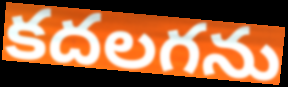
కదలగను